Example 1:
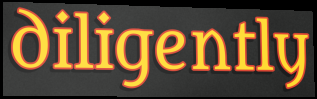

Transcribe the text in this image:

diligently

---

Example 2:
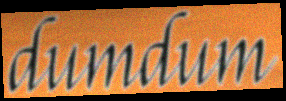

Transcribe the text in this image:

dumdum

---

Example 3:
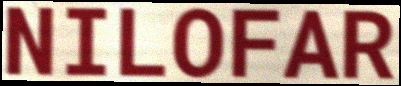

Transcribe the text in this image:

NILOFAR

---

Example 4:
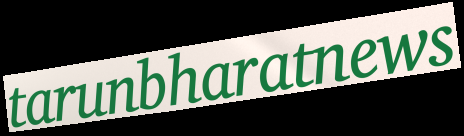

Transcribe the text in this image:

tarunbharatnews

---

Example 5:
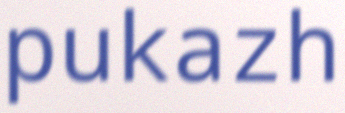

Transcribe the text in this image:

pukazh